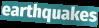
earthquakes